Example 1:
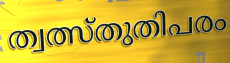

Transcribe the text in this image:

ത്വത്സ്തുതിപരം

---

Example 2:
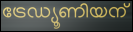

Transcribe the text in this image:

ട്രേഡ്യൂണിയന്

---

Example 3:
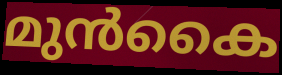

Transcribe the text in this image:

മുൻകൈ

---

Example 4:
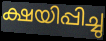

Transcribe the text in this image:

ക്ഷയിപ്പിച്ചു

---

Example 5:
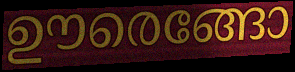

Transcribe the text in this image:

ഊരെങ്ങോ